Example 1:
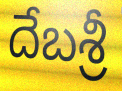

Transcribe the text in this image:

దేబశ్రీ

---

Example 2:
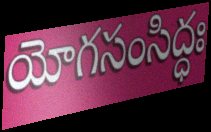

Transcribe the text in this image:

యోగసంసిద్ధః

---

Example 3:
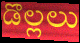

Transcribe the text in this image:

డొల్లలు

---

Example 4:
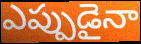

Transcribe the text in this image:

ఎప్పుడైనా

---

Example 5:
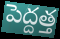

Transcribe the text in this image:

పెద్దత్త